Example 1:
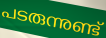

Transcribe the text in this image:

പടരുന്നുണ്ട്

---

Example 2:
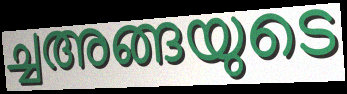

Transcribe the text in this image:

ച്ചഅങ്ങയുടെ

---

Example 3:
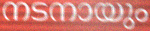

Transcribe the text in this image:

നടനായും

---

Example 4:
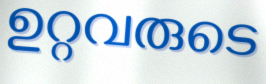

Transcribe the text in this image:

ഉറ്റവരുടെ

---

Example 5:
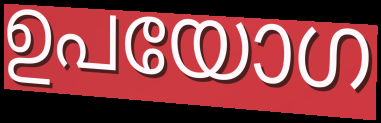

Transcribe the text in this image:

ഉപയോഗ